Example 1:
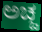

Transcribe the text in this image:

ಅಚ್ಚ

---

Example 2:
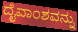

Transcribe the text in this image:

ದೈವಾಂಶವನ್ನು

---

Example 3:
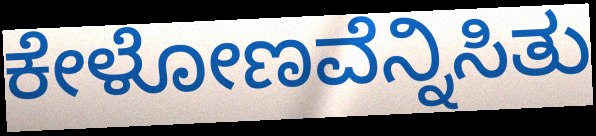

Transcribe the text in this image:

ಕೇಳೋಣವೆನ್ನಿಸಿತು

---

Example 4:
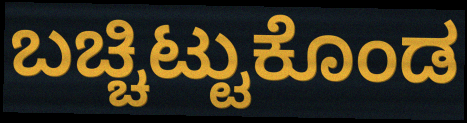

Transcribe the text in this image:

ಬಚ್ಚಿಟ್ಟುಕೊಂಡ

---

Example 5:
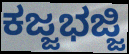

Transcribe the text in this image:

ಕಜ್ಜಭಜ್ಜಿ